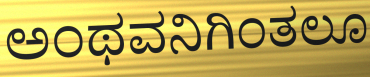
ಅಂಥವನಿಗಿಂತಲೂ